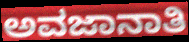
ಅವಜಾನಾತಿ